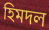
হিমদল